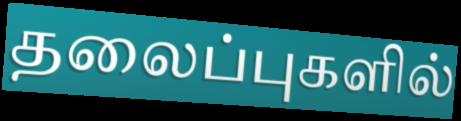
தலைப்புகளில்